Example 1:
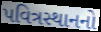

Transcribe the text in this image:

પવિત્રસ્થાનનો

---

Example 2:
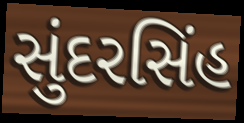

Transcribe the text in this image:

સુંદરસિંહ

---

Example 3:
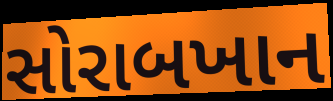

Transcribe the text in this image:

સોરાબખાન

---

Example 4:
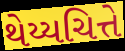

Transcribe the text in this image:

થેય્યચિત્તે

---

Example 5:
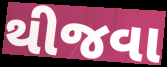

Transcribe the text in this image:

થીજવા